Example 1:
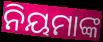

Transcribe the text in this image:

ନିୟମାଙ୍କ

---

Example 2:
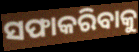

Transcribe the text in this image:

ସଫାକରିବାକୁ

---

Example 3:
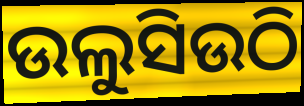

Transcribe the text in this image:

ଉଲୁସିଉଠି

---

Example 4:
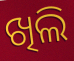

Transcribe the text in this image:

ଖିଲି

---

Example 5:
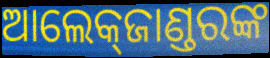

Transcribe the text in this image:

ଆଲେକ୍‌ଜାଣ୍ଡରଙ୍କ